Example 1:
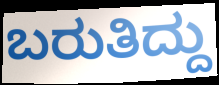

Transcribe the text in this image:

ಬರುತಿದ್ದು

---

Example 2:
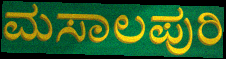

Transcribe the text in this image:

ಮಸಾಲಪುರಿ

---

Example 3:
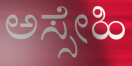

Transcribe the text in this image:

ಅಸ್ಸೇಹಿ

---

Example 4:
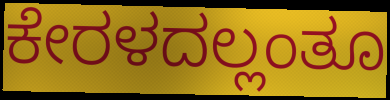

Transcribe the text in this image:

ಕೇರಳದಲ್ಲಂತೂ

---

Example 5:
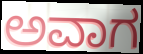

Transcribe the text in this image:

ಅವಾಗ